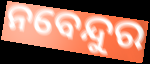
ନବେନ୍ଦୁର